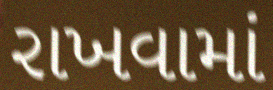
રાખવામાં